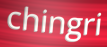
chingri